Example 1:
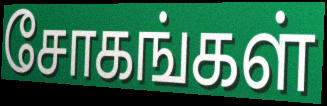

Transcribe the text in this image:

சோகங்கள்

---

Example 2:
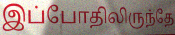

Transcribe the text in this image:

இப்போதிலிருந்தே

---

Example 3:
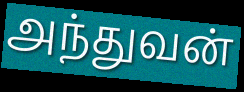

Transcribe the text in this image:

அந்துவன்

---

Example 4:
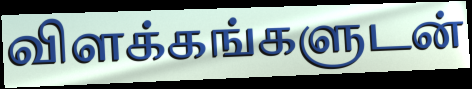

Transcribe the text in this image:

விளக்கங்களுடன்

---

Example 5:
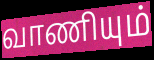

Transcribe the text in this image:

வாணியும்